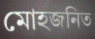
মোহজনিত